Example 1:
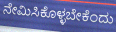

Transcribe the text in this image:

ನೇಮಿಸಿಕೊಳ್ಳಬೇಕೆಂದು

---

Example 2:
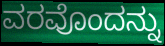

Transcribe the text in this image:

ವರವೊಂದನ್ನು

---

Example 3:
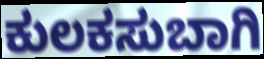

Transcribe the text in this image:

ಕುಲಕಸುಬಾಗಿ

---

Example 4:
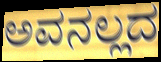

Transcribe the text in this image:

ಅವನಲ್ಲದ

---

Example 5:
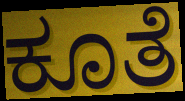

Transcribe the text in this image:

ಕೂತೆ